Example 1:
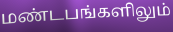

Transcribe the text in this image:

மண்டபங்களிலும்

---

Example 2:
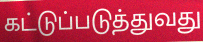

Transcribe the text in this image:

கட்டுப்படுத்துவது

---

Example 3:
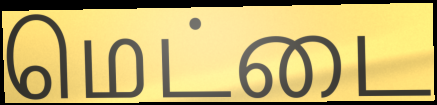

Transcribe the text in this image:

மெட்டை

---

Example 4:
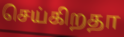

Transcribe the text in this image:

செய்கிறதா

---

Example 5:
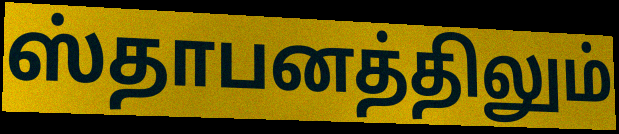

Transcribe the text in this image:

ஸ்தாபனத்திலும்